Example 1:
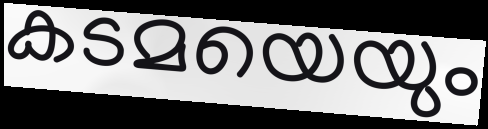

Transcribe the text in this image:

കടമയെയും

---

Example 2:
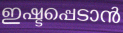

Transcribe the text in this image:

ഇഷ്ടപ്പെടാൻ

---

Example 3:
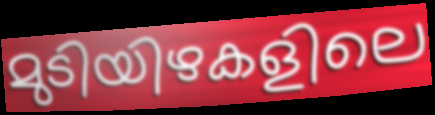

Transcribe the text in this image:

മുടിയിഴകളിലെ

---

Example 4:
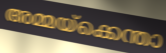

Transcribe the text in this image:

അമ്മയ്‌ക്കെന്താ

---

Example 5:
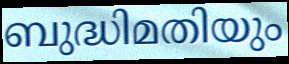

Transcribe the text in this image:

ബുദ്ധിമതിയും